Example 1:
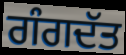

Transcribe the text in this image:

ਗੰਗਦੱਤ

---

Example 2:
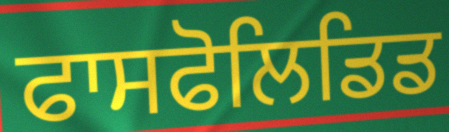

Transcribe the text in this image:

ਫਾਸਫੋਲਿਡਿਡ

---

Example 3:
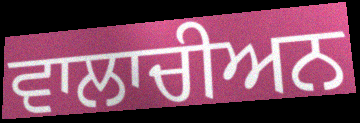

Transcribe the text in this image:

ਵਾਲਾਚੀਅਨ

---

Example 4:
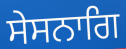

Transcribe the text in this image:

ਸੇਸਨਾਗਿ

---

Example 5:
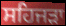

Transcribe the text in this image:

ਸਹਿਜੜਾ